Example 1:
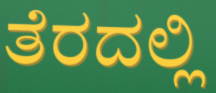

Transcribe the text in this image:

ತೆರದಲ್ಲಿ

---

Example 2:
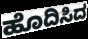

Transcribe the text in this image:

ಹೊದಿಸಿದ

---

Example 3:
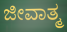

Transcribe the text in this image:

ಜೀವಾತ್ಮ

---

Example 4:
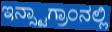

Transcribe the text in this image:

ಇನ್ಸ್ಟಾಗ್ರಾಂನಲ್ಲಿ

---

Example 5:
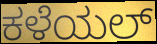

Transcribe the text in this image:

ಕಳೆಯಲ್